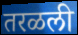
तरळली